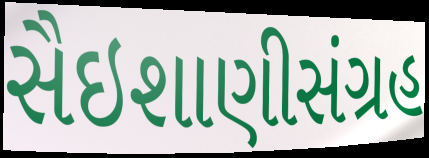
સૈઇશાણીસંગ્રહ